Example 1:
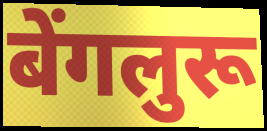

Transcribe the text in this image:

बेंगलुरू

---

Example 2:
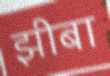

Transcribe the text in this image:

झीबा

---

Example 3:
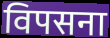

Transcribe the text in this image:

विपसना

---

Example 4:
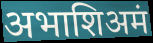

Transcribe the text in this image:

अभाशिअमं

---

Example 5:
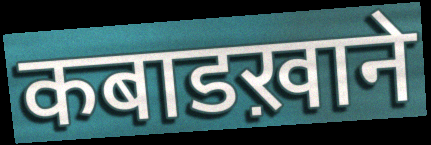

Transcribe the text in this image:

कबाडख़ाने